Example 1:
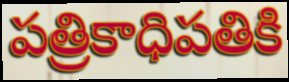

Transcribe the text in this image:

పత్రికాధిపతికి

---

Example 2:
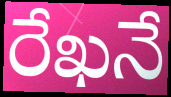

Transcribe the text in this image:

రేఖనే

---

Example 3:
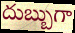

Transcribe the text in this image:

దుబ్బుగా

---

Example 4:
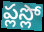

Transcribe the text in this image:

ప్లస్లో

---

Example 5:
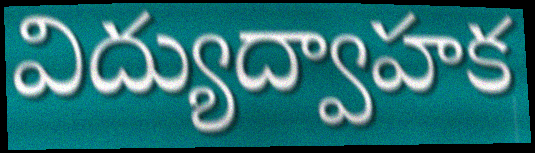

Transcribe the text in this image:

విద్యుద్వాహక